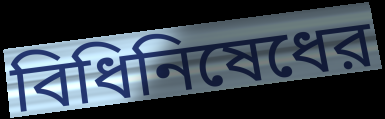
বিধিনিষেধের